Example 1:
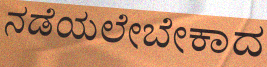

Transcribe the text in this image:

ನಡೆಯಲೇಬೇಕಾದ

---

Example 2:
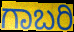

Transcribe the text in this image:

ಗಾಬರಿ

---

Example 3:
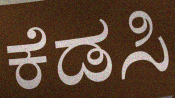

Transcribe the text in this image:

ಕೆಡಸಿ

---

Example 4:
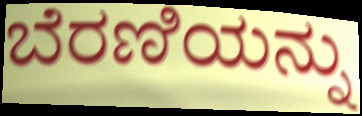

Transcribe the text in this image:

ಬೆರಣಿಯನ್ನು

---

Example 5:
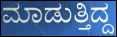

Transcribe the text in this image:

ಮಾಡುತ್ತಿದ್ದ